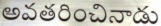
అవతరించినాడు